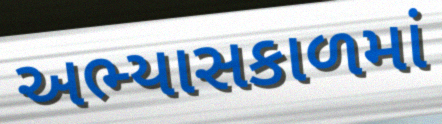
અભ્યાસકાળમાં